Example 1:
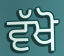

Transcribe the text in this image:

ਵੱਖੋ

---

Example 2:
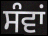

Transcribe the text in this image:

ਸੰਵਾਂ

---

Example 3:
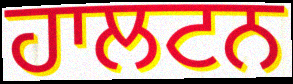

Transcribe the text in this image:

ਹਾਲਟਨ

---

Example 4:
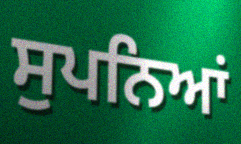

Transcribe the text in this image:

ਸੁਪਨਿਆਂ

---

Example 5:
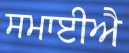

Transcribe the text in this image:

ਸਮਾਈਐ